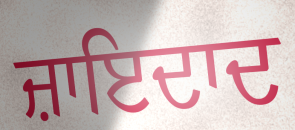
ਜ਼ਾਇਦਾਦ